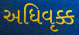
અધિવૃક્ક